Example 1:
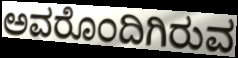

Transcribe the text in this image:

ಅವರೊಂದಿಗಿರುವ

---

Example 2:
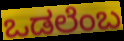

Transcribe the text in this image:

ಒಡಲೆಂಬ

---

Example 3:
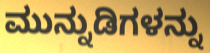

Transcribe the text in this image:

ಮುನ್ನುಡಿಗಳನ್ನು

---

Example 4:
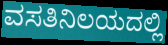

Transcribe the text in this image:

ವಸತಿನಿಲಯದಲ್ಲಿ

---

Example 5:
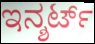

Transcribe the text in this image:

ಇನ್ಶರ್ಟ್